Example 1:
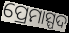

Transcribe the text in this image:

ପ୍ରେମାସ୍ପଦ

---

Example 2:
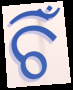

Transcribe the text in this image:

ଚିଁ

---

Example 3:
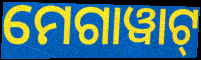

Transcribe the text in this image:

ମେଗାୱାଟ୍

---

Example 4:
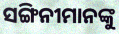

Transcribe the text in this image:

ସଙ୍ଗିନୀମାନଙ୍କୁ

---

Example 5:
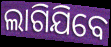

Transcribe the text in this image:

ଲାଗିଯିବେ